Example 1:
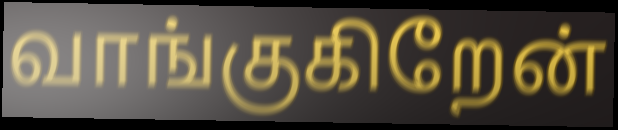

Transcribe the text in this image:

வாங்குகிறேன்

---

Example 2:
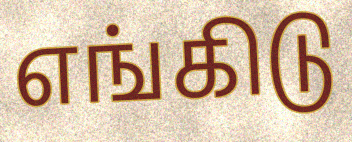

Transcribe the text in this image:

எங்கிடு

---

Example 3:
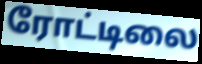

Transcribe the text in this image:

ரோட்டிலை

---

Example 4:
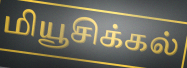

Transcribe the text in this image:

மியூசிக்கல்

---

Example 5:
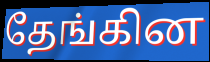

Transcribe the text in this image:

தேங்கின